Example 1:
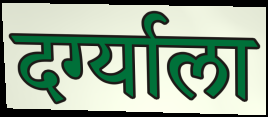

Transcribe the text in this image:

दर्ग्याला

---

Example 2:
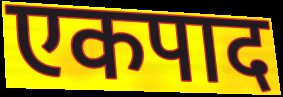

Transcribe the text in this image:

एकपाद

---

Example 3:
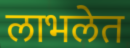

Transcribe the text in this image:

लाभलेत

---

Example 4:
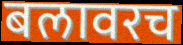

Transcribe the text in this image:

बलावरच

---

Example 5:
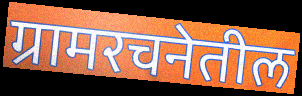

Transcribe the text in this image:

ग्रामरचनेतील